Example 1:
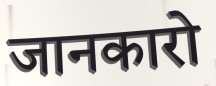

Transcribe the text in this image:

जानकारो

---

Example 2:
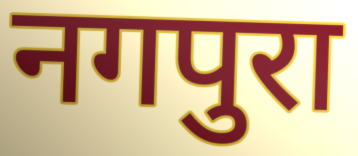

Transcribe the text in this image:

नगपुरा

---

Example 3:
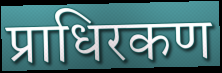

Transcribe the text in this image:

प्राधिरकण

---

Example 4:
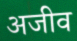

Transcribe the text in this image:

अजीव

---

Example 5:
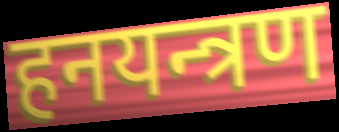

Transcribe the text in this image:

हनयन्त्रण